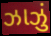
ઝાઝું